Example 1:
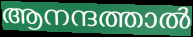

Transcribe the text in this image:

ആനന്ദത്താൽ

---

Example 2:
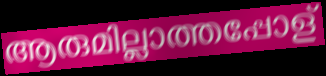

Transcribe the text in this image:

ആരുമില്ലാത്തപ്പോള്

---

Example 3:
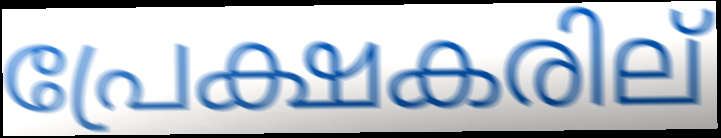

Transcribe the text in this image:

പ്രേക്ഷകരില്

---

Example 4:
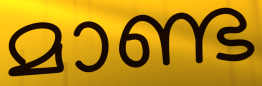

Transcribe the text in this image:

മാണ്ട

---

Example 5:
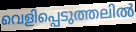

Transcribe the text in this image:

വെളിപ്പെടുത്തലിൽ